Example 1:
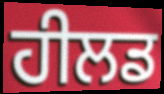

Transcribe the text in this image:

ਹੀਲਡ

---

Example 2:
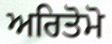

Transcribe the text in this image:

ਅਰਿਤੋਮੋ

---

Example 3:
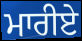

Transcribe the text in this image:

ਮਾਰੀਏ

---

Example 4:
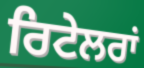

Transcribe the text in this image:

ਰਿਟੇਲਰਾਂ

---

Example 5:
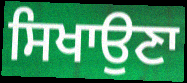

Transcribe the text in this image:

ਸਿਖਾਉਣਾ